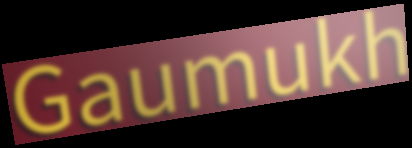
Gaumukh